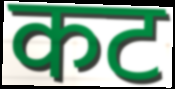
कट